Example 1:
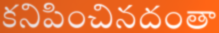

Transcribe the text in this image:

కనిపించినదంతా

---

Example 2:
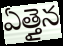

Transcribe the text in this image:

ఏత్తైన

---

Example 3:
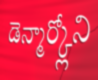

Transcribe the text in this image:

డెన్మార్క్లోని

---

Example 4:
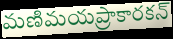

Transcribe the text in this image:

మణిమయప్రాకారకన్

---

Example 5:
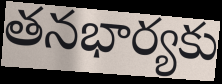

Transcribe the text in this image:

తనభార్యకు